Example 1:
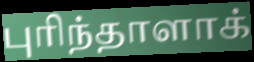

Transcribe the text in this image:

புரிந்தாளாக்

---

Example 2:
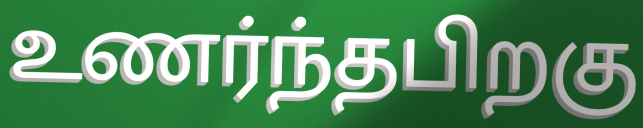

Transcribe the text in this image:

உணர்ந்தபிறகு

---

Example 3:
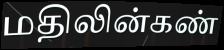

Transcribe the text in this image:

மதிலின்கண்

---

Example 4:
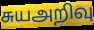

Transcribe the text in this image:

சுயஅறிவு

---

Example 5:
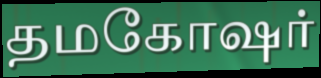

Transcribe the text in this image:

தமகோஷர்